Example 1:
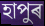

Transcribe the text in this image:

হাপুৰ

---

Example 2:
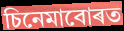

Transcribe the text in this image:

চিনেমাবোৰত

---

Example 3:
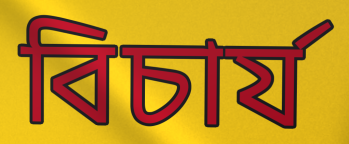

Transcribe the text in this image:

বিচাৰ্য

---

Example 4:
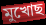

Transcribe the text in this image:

মুখোছ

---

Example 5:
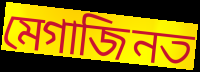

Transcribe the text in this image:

মেগাজিনত